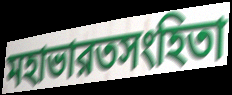
মহাভারতসংহিতা